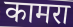
कामरा